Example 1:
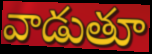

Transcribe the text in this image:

వాడుతూ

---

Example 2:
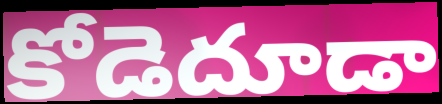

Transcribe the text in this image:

కోడెదూడా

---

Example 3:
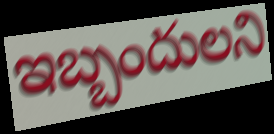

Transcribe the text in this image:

ఇబ్బందులని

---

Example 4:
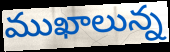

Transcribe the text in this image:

ముఖాలున్న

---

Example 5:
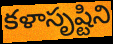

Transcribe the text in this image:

కళాసృష్టిని